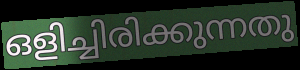
ഒളിച്ചിരിക്കുന്നതു